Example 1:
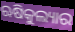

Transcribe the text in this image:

ଋଷିକୁଲ୍ୟାର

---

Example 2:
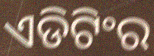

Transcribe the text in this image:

ଏଡିଟିଂର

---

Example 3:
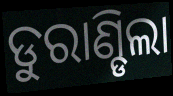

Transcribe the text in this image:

ଡୁରାଣ୍ଡିଲା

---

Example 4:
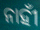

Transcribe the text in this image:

ନାହୀଁ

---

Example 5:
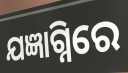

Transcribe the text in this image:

ଯଜ୍ଞାଗ୍ନିରେ